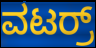
ವಟರ್ರ್